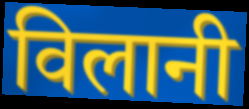
विलानी